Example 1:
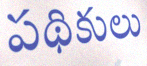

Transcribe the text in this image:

పథికులు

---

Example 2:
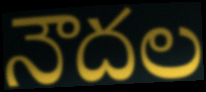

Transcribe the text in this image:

నౌదల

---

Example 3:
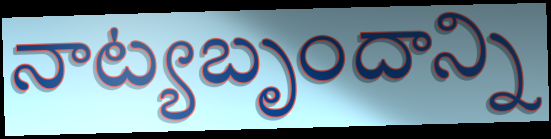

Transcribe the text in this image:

నాట్యబృందాన్ని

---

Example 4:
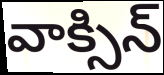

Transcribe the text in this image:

వాక్సిన్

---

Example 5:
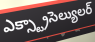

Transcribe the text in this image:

ఎక్స్ట్రాసెల్యులర్